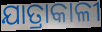
ଯାତ୍ରାକାଳୀ